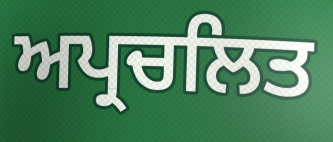
ਅਪ੍ਰਚਲਿਤ